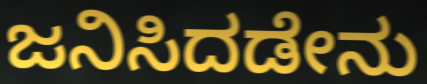
ಜನಿಸಿದಡೇನು